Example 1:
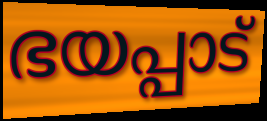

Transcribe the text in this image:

ഭയപ്പാട്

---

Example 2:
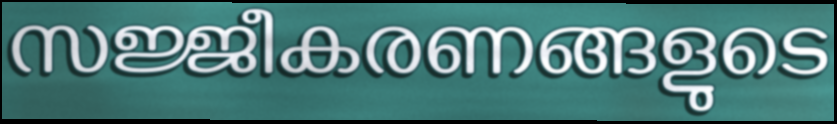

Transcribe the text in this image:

സജ്ജീകരണങ്ങളുടെ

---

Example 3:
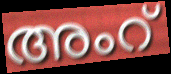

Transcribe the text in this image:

അംറ്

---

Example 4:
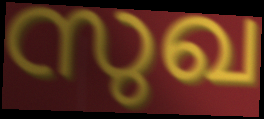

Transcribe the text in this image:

സുഖ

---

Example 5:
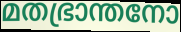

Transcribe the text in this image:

മതഭ്രാന്തനോ